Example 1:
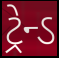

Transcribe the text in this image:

ટ્રેન્ડ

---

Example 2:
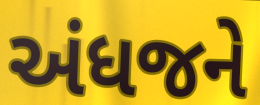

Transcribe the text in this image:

અંધજને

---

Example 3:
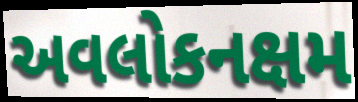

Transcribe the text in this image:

અવલોકનક્ષમ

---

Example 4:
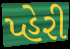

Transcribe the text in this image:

પ્હેરી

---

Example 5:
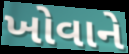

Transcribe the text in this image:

ખોવાને